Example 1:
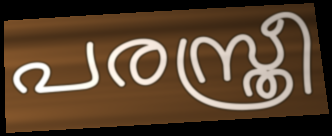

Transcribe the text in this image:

പരസ്ത്രീ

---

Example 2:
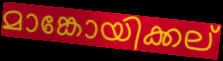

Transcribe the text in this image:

മാങ്കോയിക്കല്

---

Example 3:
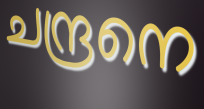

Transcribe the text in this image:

ചന്ദ്രനെ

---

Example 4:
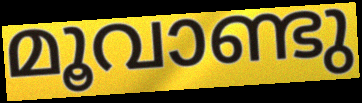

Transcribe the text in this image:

മൂവാണ്ടു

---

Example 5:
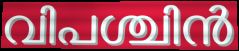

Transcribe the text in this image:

വിപശ്ചിൻ